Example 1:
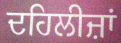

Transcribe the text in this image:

ਦਹਿਲੀਜ਼ਾਂ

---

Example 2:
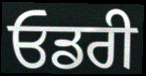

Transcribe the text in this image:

ਓਡਰੀ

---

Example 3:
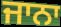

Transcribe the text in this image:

ਜਾਨਾ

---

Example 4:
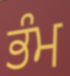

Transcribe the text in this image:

ਭੰਮ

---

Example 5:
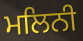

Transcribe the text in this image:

ਮਲਿਨੀ